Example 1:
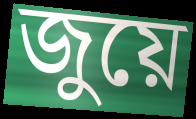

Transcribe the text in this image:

জুয়ে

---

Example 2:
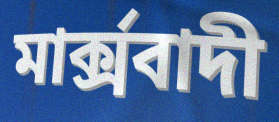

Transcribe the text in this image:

মাৰ্ক্সবাদী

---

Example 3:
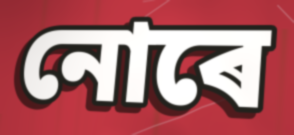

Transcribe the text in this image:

নোৰে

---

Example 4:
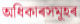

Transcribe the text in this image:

অধিকাৰসমূহৰ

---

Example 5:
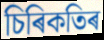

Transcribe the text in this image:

চিৰিকতিৰ